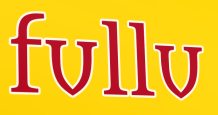
fullu